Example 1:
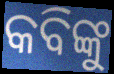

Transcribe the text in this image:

କବିଙ୍କୁ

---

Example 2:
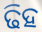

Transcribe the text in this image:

ଢିହ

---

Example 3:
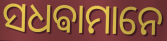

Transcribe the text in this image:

ସଧଵାମାନେ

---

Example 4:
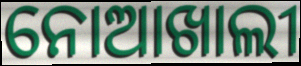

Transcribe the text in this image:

ନୋଆଖାଲୀ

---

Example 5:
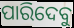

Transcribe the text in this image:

ପାରିଦେବୁ